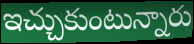
ఇచ్చుకుంటున్నారు